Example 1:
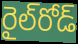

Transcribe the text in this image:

రైల్‌రోడ్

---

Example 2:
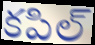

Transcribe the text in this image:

కపిల్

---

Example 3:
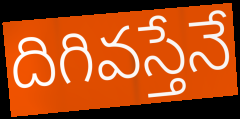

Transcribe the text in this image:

దిగివస్తేనే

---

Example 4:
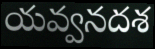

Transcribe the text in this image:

యవ్వనదశ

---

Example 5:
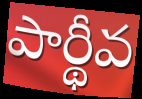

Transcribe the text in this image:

పార్థీవ